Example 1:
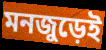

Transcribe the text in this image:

মনজুড়েই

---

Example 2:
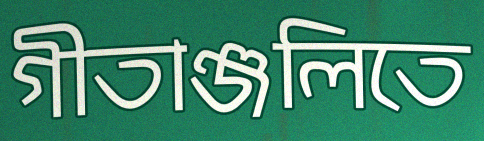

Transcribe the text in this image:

গীতাঞ্জলিতে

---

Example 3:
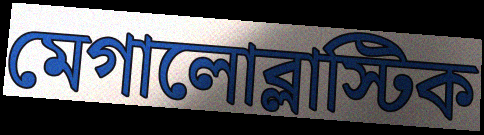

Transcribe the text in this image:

মেগালোব্লাস্টিক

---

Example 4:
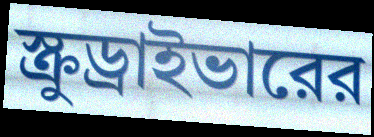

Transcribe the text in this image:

স্ক্রুড্রাইভারের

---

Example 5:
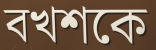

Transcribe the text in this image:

বখশকে